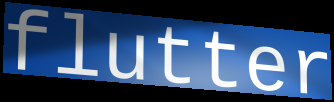
flutter